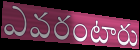
ఎవరంటారు